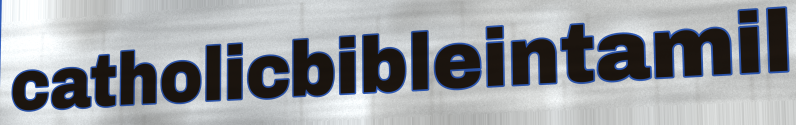
catholicbibleintamil